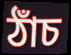
ঠাঁচ